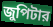
জুপিটার